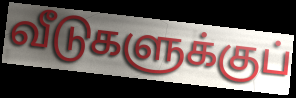
வீடுகளுக்குப்